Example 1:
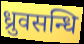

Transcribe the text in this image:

ध्रुवसन्धि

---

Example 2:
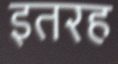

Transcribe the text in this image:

इतरह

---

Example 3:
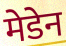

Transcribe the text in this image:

मेडेन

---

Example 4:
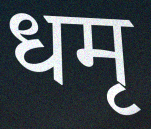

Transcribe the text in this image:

धमृ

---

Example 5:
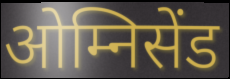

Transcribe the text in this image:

ओम्निसेंड